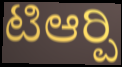
ಟಿಆರ್‍ಪಿ